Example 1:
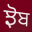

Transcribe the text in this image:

ਝੋਬ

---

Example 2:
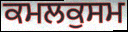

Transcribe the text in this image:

ਕਮਲਕੁਸਮ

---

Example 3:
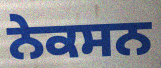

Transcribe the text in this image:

ਨੇਕਸਨ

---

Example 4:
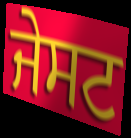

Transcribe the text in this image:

ਜੇਸਟ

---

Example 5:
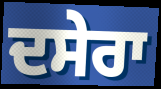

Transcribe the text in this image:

ਦਸੇਰਾ